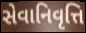
સેવાનિવૃત્તિ